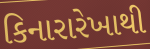
કિનારારેખાથી